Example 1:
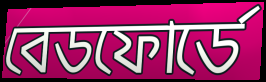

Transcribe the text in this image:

বেডফোর্ডে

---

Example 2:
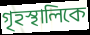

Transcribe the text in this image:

গৃহস্থালিকে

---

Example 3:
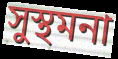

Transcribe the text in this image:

সুস্থমনা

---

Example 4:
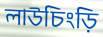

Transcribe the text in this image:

লাউচিংড়ি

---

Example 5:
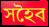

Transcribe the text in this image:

সহৈব